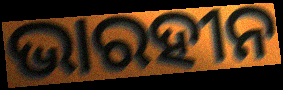
ଭାରହୀନ